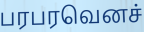
பரபரவெனச்